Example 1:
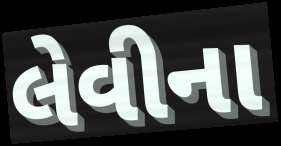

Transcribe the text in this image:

લેવીના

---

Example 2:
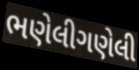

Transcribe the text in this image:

ભણેલીગણેલી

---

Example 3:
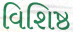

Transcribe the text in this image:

વિશિષ્ઠ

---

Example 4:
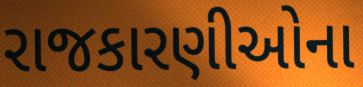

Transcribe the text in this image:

રાજકારણીઓના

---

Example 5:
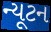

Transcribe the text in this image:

ન્યૂટન